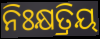
ନିଃକ୍ଷତ୍ରିୟ